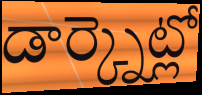
డార్క్నెట్లో